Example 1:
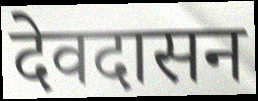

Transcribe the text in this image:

देवदासन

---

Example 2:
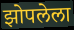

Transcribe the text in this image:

झोपलेला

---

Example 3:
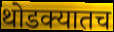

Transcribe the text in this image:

थोडक्यातच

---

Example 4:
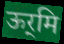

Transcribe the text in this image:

ऊर्मि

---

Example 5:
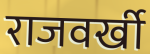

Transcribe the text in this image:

राजवर्खी